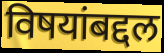
विषयांबद्दल